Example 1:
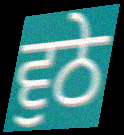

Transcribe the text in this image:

ਵੁਠੇ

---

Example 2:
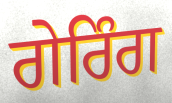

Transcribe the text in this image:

ਗੇਰਿੰਗ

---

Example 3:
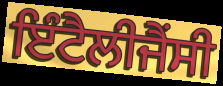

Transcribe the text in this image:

ਇੰਟੈਲੀਜੈਂਸੀ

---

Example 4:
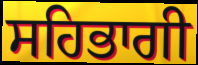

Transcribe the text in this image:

ਸਹਿਭਾਗੀ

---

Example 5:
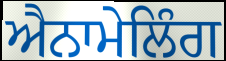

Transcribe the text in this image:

ਐਨਾਮੇਲਿੰਗ